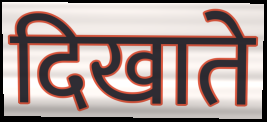
दिखाते